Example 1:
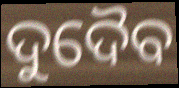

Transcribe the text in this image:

ଦୁଦୈବ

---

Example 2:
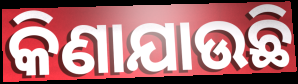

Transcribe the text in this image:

କିଣାଯାଉଛି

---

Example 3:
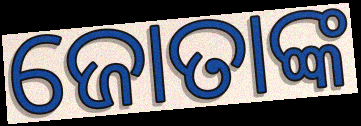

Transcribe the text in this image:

ଜୋତାଙ୍କ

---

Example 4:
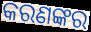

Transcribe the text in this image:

କରଣଙ୍କର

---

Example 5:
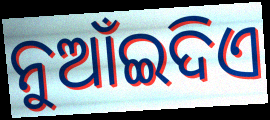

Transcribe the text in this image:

ନୁଆଁଇଦିଏ